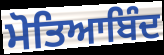
ਮੋਤਿਆਬਿੰਦ